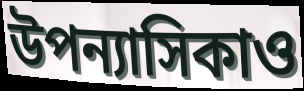
উপন্যাসিকাও